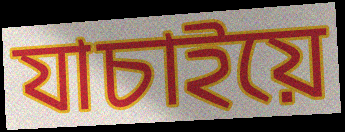
যাচাইয়ে